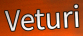
Veturi